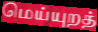
மெய்யுறத்